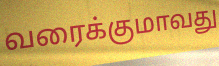
வரைக்குமாவது